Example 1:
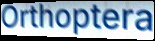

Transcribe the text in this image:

Orthoptera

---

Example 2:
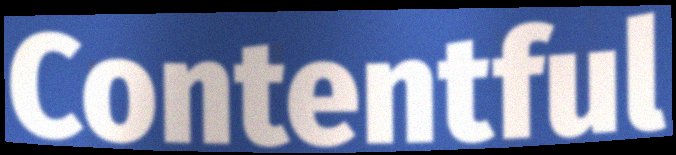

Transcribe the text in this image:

Contentful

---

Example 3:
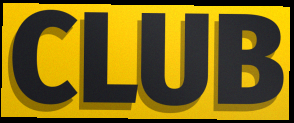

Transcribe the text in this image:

CLUB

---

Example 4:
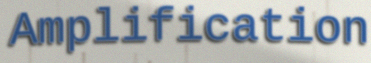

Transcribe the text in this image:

Amplification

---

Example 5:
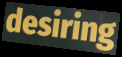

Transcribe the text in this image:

desiring